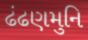
ઢંઢણમુનિ